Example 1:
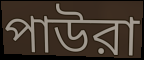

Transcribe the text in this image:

পাউরা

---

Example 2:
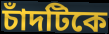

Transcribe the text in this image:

চাঁদটিকে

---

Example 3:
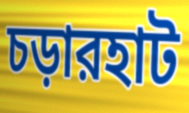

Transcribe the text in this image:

চড়ারহাট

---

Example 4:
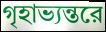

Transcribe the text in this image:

গৃহাভ্যন্তরে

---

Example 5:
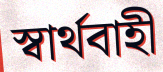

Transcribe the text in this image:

স্বার্থবাহী